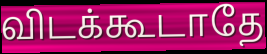
விடக்கூடாதே